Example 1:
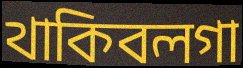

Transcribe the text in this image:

থাকিবলগা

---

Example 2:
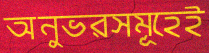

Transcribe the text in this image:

অনুভৱসমূহেই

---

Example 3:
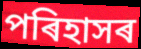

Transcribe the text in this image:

পৰিহাসৰ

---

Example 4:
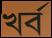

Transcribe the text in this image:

খৰ্ব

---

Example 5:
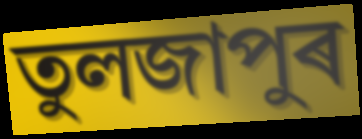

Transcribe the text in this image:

তুলজাপুৰ